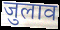
जुलाव